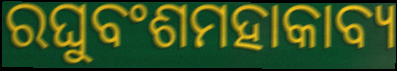
ରଘୁବଂଶମହାକାବ୍ୟ